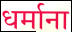
धर्माना